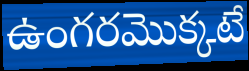
ఉంగరమొక్కటే